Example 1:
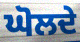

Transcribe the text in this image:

ਘੋਲਦੇ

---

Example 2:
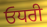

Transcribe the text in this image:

ਓਧਰੀ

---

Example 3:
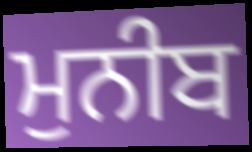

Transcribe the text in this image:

ਮੁਨੀਬ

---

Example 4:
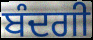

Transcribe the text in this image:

ਬੰਦਗੀ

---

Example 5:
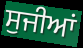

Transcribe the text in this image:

ਸੁਜੀਆਂ